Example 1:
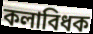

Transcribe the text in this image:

কলাবিধক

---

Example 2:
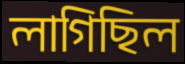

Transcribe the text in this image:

লাগিছিল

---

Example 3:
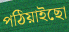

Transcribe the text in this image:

পঠিয়াইছো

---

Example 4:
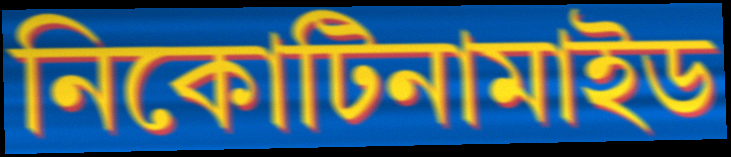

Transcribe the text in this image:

নিকোটিনামাইড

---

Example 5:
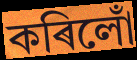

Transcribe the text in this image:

কৰিলোঁ